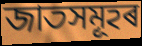
জাতসমূহৰ